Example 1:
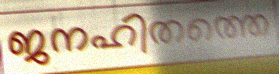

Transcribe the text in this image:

ജനഹിതത്തെ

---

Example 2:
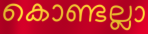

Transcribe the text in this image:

കൊണ്ടല്ലാ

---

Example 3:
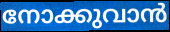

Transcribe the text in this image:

നോക്കുവാൻ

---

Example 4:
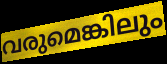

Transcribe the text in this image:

വരുമെങ്കിലും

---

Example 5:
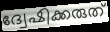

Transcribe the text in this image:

ദ്വേഷിക്കരുത്